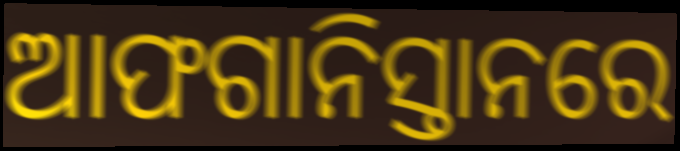
ଆଫଗାନିସ୍ତାନରେ